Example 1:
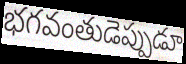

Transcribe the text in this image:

భగవంతుడెప్పుడూ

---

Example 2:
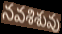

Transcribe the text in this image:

నవశిశువు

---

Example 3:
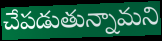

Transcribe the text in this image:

చేపడుతున్నామని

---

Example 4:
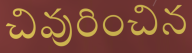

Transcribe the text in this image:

చివురించిన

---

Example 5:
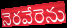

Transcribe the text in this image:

నెరవేరెను